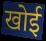
खोई